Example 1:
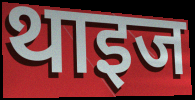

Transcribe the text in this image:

थाइज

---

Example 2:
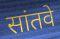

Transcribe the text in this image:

सांतवे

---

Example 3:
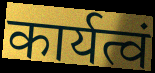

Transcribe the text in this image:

कार्यत्वं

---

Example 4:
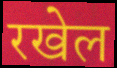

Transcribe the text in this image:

रखेल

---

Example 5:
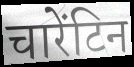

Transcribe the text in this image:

चारेंटिन